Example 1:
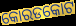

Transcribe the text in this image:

କୋରଡକୋଟ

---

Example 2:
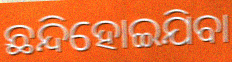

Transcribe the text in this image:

ଛନ୍ଦିହୋଇଯିବା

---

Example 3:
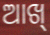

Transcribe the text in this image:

ଆଖ୍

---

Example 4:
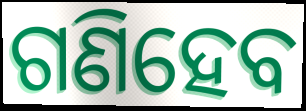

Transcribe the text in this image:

ଗଣିହେବ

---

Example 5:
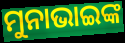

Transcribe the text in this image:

ମୁନାଭାଇଙ୍କ